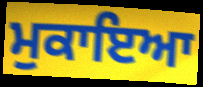
ਮੁਕਾਇਆ